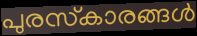
പുരസ്‌കാരങ്ങൾ